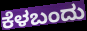
ಕೆಳಬಂದು